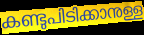
കണ്ടുപിടിക്കാനുള്ള